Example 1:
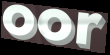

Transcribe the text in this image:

oor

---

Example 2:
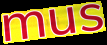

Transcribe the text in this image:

mus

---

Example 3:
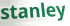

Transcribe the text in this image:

stanley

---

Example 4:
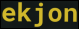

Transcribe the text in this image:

ekjon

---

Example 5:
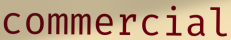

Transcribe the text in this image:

commercial